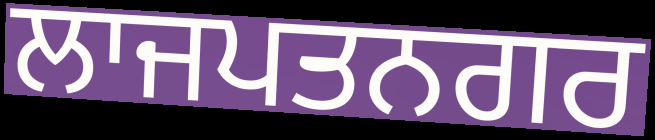
ਲਾਜਪਤਨਗਰ